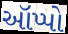
ઑપ્પો